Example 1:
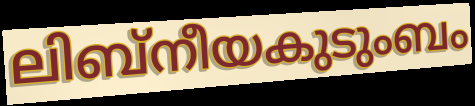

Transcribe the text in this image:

ലിബ്നീയകുടുംബം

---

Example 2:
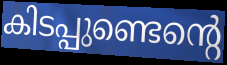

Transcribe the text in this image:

കിടപ്പുണ്ടെന്റെ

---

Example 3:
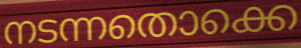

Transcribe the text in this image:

നടന്നതൊക്കെ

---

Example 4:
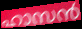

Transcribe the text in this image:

ഹാസൻ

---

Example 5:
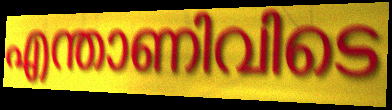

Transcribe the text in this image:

എന്താണിവിടെ